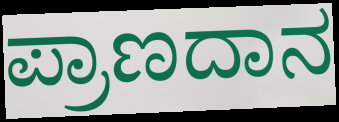
ಪ್ರಾಣದಾನ